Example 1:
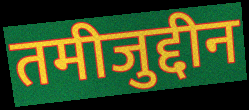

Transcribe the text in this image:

तमीजुद्दीन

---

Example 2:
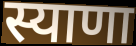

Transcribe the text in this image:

स्याणा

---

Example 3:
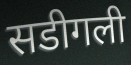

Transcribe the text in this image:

सडीगली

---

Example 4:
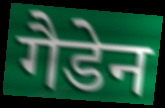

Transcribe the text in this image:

गैडेन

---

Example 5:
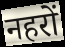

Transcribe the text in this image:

नहरों